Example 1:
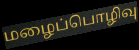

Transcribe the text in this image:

மழைப்பொழிவு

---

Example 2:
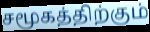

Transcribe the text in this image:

சமூகத்திற்கும்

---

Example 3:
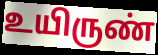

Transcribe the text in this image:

உயிருண்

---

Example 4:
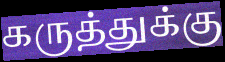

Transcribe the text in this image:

கருத்துக்கு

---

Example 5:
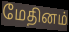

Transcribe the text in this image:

மேதினம்